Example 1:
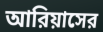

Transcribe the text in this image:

আরিয়াসের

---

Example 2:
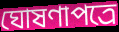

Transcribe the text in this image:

ঘোষণাপত্রে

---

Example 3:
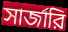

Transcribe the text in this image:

সার্জারি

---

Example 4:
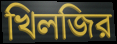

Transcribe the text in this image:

খিলজির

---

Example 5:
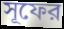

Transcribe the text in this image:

সূফের